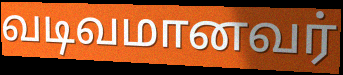
வடிவமானவர்